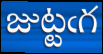
జుట్టఁగ